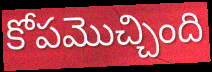
కోపమొచ్చింది